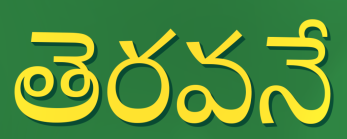
తెరవనే